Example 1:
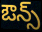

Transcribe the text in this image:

ఔన్స్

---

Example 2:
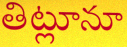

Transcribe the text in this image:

తిట్లూనూ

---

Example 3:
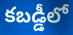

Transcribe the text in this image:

కబడ్డీలో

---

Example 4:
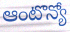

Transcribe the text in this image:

ఆంటొన్యో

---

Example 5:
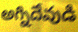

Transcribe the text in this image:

అగ్నిదేవుడి